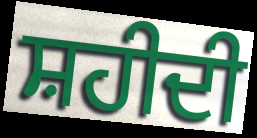
ਸ਼ਹੀਦੀ